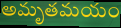
అమృతమయం